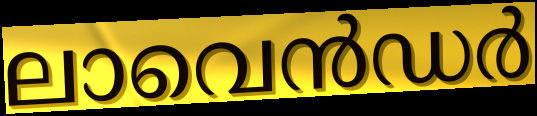
ലാവെൻഡർ